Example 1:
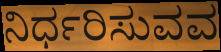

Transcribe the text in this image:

ನಿರ್ಧರಿಸುವವ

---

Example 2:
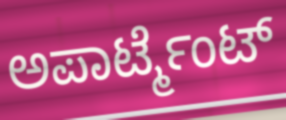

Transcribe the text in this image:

ಅಪಾರ್ಟ್ಮೆಂಟ್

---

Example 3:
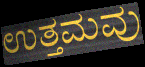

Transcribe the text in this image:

ಉತ್ತಮವು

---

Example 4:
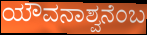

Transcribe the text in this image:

ಯೌವನಾಶ್ವನೆಂಬ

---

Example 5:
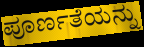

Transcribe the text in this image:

ಪೂರ್ಣತೆಯನ್ನು